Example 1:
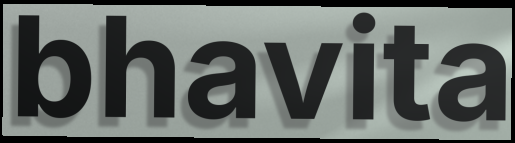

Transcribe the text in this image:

bhavita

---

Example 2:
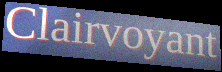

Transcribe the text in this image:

Clairvoyant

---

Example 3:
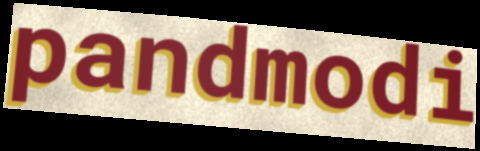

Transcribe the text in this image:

pandmodi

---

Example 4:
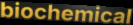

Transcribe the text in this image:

biochemical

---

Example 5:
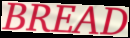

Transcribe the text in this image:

BREAD